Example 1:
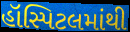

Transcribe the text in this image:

હૉસ્પિટલમાંથી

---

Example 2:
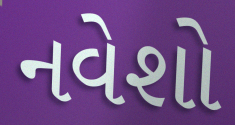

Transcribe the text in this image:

નવેશો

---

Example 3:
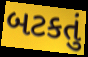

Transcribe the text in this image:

બટકતું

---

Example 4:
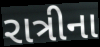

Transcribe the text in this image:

રાત્રીના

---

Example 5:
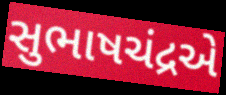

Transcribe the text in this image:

સુભાષચંદ્રએ